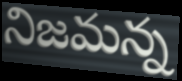
నిజమన్న